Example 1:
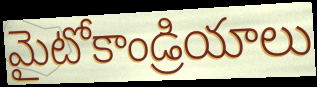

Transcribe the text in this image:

మైటోకాండ్రియాలు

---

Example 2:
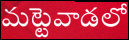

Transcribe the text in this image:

మట్టెవాడలో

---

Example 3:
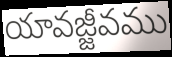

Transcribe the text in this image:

యావజ్జీవము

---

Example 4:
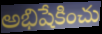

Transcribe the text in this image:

అభిషేకించు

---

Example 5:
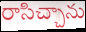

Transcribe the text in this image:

రాసిచ్చాను